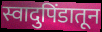
स्वादुपिंडातून